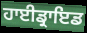
ਹਾਈਡ੍ਰਾਇਡ